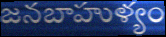
జనబాహుళ్యం